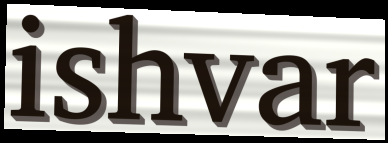
ishvar